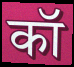
कॉ